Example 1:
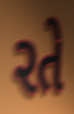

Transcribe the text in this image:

રતે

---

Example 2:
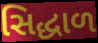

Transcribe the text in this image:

સિદ્ધાળ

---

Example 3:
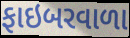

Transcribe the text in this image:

ફાઇબરવાળા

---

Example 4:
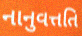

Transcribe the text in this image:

નાનુવત્તતિ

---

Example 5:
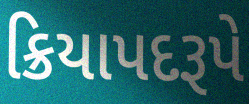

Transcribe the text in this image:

ક્રિયાપદરૂપે